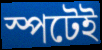
স্পটেই